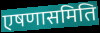
एषणासमिति